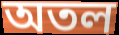
অতল